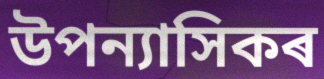
উপন্যাসিকৰ